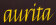
aurita